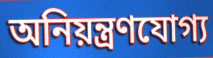
অনিয়ন্ত্রণযোগ্য